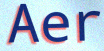
Aer